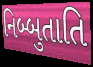
નિબ્બુતાતિ